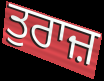
ਤੁਰਾਜ਼